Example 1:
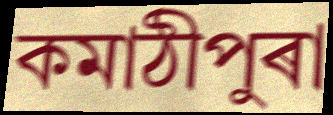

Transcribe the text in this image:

কমাঠীপুৰা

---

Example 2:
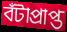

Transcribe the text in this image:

বঁটাপ্ৰাপ্ত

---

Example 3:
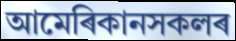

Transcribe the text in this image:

আমেৰিকানসকলৰ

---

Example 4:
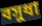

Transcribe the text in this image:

বসুধা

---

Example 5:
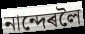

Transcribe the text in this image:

নান্দেৰলৈ